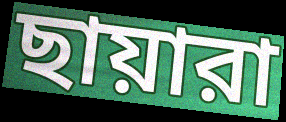
ছায়ারা